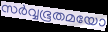
സർവ്വഭൂതമയോ